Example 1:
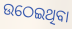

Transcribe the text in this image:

ଉଠେଇଥିବା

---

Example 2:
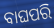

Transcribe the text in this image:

ବାଘପରି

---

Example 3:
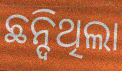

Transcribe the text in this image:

ଛନ୍ଦିଥିଲା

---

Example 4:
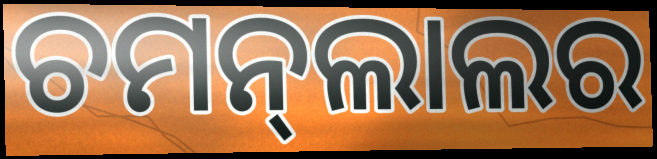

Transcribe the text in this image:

ଚମନ୍‍ଲାଲର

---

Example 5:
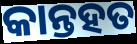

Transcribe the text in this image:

କାନ୍ତହତ